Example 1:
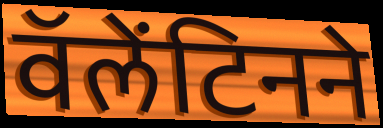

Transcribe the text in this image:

वॅलेंटिनने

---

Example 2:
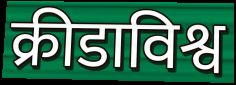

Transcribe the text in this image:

क्रीडाविश्व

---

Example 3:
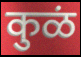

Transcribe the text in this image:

कुळं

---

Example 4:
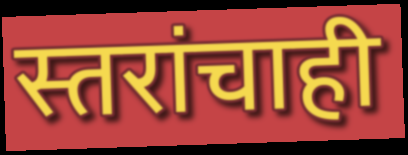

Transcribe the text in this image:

स्तरांचाही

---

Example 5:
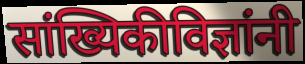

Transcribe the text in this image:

सांख्यिकीविज्ञांनी